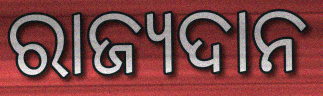
ରାଜ୍ୟଦାନ